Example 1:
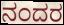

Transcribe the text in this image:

ನಂದರ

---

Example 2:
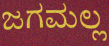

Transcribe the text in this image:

ಜಗಮಲ್ಲ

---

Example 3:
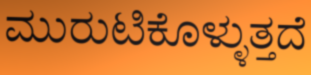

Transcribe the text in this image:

ಮುರುಟಿಕೊಳ್ಳುತ್ತದೆ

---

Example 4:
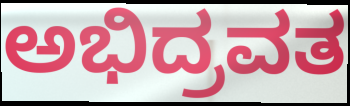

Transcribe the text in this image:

ಅಭಿದ್ರವತ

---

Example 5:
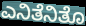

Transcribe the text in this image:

ಎನಿತೆನಿತೊ